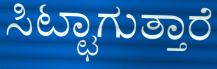
ಸಿಟ್ಟಾಗುತ್ತಾರೆ